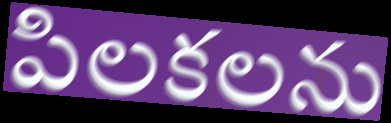
పిలకలను